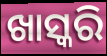
ଖାସ୍କରି